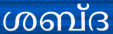
ശബ്ദ